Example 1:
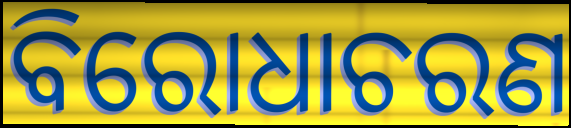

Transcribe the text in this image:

ବିରୋଧାଚରଣ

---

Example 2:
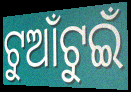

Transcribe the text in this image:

ଟୁଆଁଟୁଇଁ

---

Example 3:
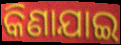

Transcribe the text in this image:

କିଣାଯାଇ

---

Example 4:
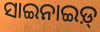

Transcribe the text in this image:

ସାଇନାଇଡ଼୍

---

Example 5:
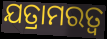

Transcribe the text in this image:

ଯତ୍ରାମରତ୍ଵ